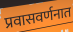
प्रवासवर्णनात